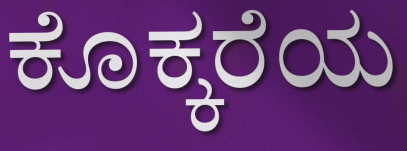
ಕೊಕ್ಕರೆಯ